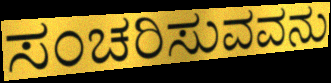
ಸಂಚರಿಸುವವನು